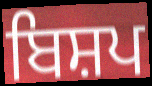
ਬਿਸ਼ਪ